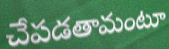
చేపడతామంటూ